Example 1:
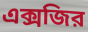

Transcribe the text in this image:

এক্সজির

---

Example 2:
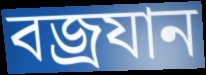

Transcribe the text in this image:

বজ্রযান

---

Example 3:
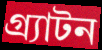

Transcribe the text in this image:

গ্র্যাটন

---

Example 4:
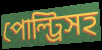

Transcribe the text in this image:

পোল্ট্রিসহ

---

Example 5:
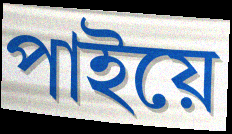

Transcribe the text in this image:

পাইয়ে